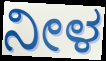
ನೀಳ